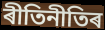
ৰীতিনীতিৰ